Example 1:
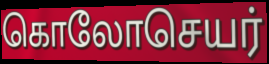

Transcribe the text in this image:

கொலோசெயர்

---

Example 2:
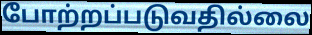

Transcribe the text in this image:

போற்றப்படுவதில்லை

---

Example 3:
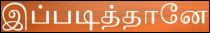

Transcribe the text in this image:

இப்படித்தானே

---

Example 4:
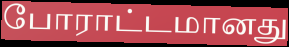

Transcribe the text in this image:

போராட்டமானது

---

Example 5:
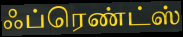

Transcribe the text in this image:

ஃப்ரெண்ட்ஸ்